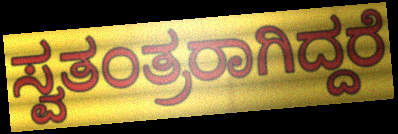
ಸ್ವತಂತ್ರರಾಗಿದ್ದರೆ